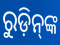
ରୁଡ଼ିନ୍‌ଙ୍କ